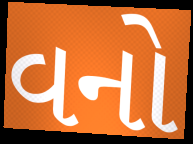
વનો